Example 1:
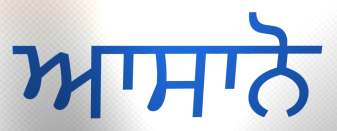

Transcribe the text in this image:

ਆਸਾਨੋ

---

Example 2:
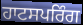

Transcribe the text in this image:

ਹਾਟਸਪਰਿੰਗ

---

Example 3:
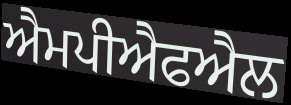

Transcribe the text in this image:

ਐਮਪੀਐਫਐਲ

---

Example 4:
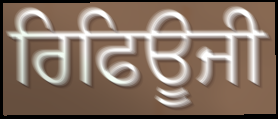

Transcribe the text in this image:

ਰਿਫਿਊਜੀ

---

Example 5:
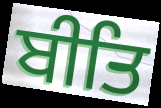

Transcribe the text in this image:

ਬੀਤਿ